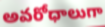
అవరోధాలుగా